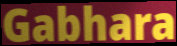
Gabhara